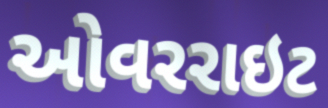
ઓવરરાઇટ